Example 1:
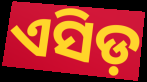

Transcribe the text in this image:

ଏସିଡ଼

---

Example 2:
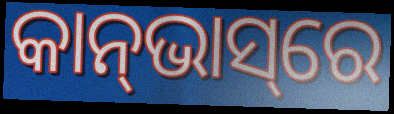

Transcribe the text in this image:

କାନ୍‌ଭାସ୍‌ରେ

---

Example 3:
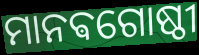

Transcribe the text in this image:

ମାନଵଗୋଷ୍ଠୀ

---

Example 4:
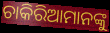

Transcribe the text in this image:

ଚାକିରିଆମାନଙ୍କୁ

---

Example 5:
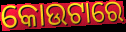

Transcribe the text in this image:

କୋଉଟାରେ